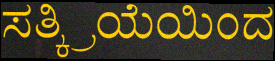
ಸತ್ಕ್ರಿಯೆಯಿಂದ